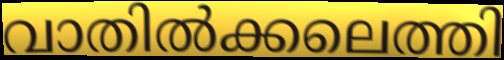
വാതിൽക്കലെത്തി